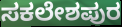
ಸಕಲೇಶಪುರ